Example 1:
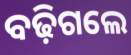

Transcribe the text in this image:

ବଢ଼ିଗଲେ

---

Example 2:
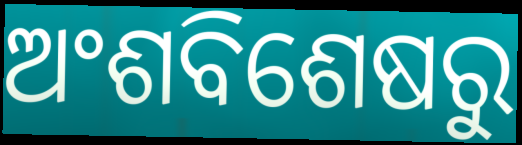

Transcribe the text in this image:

ଅଂଶବିଶେଷରୁ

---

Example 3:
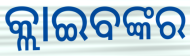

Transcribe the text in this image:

କ୍ଲାଇବଙ୍କର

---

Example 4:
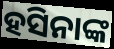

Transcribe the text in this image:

ହସିନାଙ୍କ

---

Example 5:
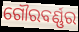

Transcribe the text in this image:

ଗୌରବର୍ଣ୍ଣର